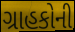
ગ્રાહકોની